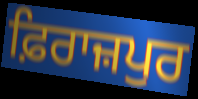
ਫ਼ਿਰਾਜ਼ਪੁਰ